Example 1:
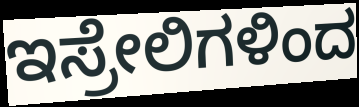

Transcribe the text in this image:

ಇಸ್ರೇಲಿಗಳಿಂದ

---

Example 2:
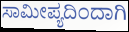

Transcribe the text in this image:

ಸಾಮೀಪ್ಯದಿಂದಾಗಿ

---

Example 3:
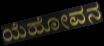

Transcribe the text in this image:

ಯೆಹೋವನ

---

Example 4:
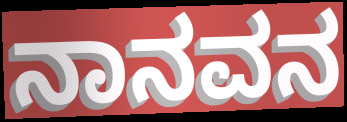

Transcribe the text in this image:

ನಾನವನ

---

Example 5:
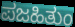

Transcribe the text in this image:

ಪಜಹಿತುಂ